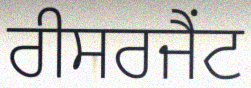
ਰੀਸਰਜੈਂਟ